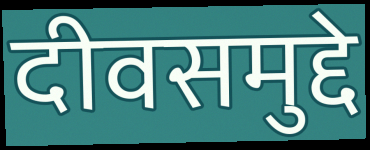
दीवसमुद्दे